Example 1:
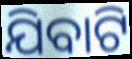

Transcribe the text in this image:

ଯିବାଟି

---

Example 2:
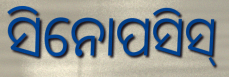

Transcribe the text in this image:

ସିନୋପସିସ୍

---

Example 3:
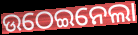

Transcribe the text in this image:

ଉଠେଇନେଲା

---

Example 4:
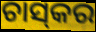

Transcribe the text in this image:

ଚାସ୍‌କର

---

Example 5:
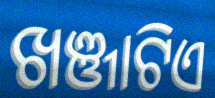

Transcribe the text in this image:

ଖଞ୍ଜାଟିଏ